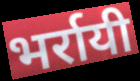
भर्रायी